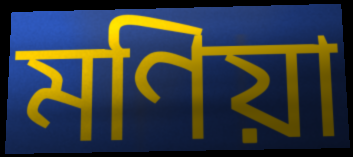
মণিয়া